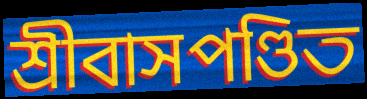
শ্রীবাসপণ্ডিত